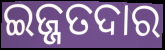
ଇଜ୍ଜତଦାର